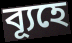
ব্যূহে